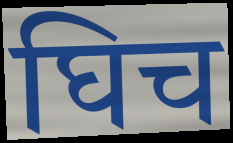
घिच